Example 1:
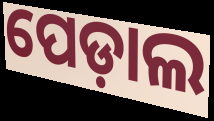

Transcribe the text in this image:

ପେଡ଼ାଲ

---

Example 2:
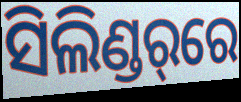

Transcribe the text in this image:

ସିଲିଣ୍ଡର୍‌ରେ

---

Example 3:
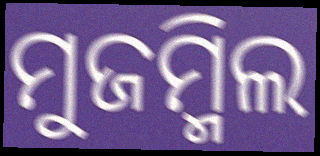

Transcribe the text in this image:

ମୁଜମ୍ମିଲ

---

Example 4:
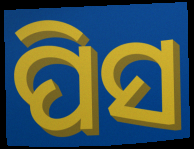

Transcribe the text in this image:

ପିସ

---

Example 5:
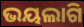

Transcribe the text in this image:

ଭୟଲାଗି